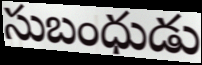
సుబంధుడు